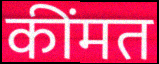
कींमत